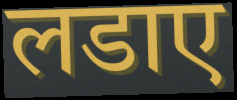
लडाए